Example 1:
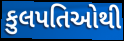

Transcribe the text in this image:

કુલપતિઓથી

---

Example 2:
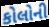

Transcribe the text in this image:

કોલોની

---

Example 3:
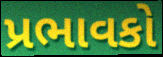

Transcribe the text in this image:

પ્રભાવકો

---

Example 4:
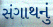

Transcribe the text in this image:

સંગાથનું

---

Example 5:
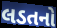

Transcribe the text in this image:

લડતનો